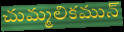
చుమ్మలికమున్